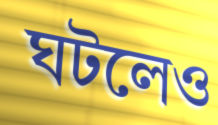
ঘটলেও